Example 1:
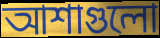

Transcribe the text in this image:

আশাগুলো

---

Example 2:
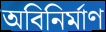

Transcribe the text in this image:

অবিনির্মাণ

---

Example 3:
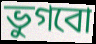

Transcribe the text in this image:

ভুগবো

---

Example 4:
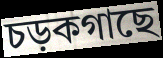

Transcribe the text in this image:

চড়কগাছে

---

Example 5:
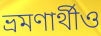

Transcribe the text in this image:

ভ্রমণার্থীও